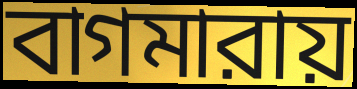
বাগমারায়